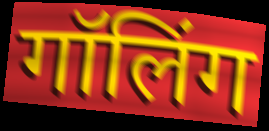
गॉलिंग